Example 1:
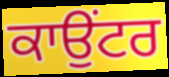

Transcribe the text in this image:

ਕਾਉਂਟਰ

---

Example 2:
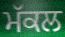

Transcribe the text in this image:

ਮੱਕਲ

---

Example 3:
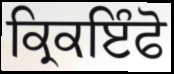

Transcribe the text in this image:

ਕ੍ਰਿਕਇੰਫੋ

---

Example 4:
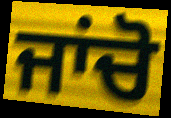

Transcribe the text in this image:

ਜਾਂਚੋ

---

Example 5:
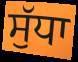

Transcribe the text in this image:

ਸੁੱਧਾ